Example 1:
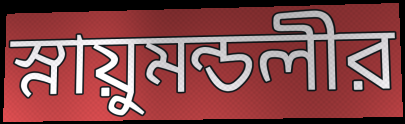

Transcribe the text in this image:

স্নায়ুমন্ডলীর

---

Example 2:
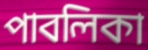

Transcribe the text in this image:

পাবলিকা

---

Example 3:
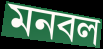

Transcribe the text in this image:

মনবল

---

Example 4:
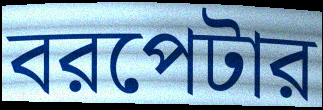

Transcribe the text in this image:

বরপেটার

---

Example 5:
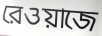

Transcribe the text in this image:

রেওয়াজে